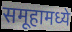
समूहामध्ये